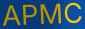
APMC